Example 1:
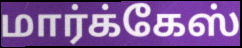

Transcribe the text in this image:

மார்க்கேஸ்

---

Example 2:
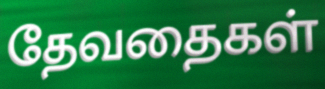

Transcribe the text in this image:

தேவதைகள்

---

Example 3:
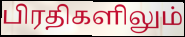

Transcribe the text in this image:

பிரதிகளிலும்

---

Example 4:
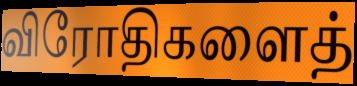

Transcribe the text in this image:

விரோதிகளைத்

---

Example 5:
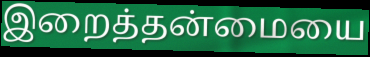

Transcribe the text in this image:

இறைத்தன்மையை